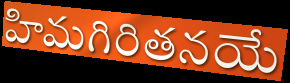
హిమగిరితనయే